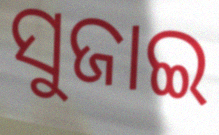
ସୁଜାଇ